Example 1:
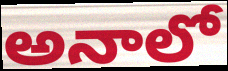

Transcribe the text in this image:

అనాలో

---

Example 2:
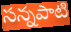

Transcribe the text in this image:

సన్నపాటి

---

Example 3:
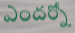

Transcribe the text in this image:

ఎందర్నో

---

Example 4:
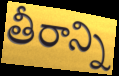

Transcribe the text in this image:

తీరాన్ని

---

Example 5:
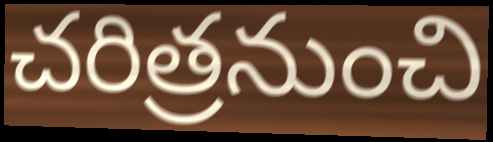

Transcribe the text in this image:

చరిత్రనుంచి